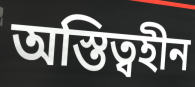
অস্তিত্বহীন